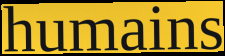
humains